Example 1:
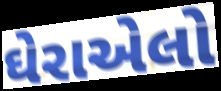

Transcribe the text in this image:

ઘેરાએલો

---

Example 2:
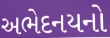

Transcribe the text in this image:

અભેદનયનો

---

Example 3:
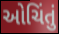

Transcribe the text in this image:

ઓચિંતું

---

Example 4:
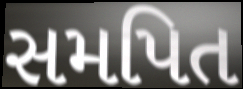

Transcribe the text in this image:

સમપિત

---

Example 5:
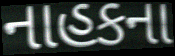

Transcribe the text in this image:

નાહકના